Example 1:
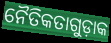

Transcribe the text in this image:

ନୈତିକତାଗୁଡ଼ାକ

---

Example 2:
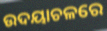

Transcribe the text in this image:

ଉଦୟାଚଳରେ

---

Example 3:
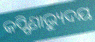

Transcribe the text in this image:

କପ୍ଫିଣାଭ୍ୟୁଦୟ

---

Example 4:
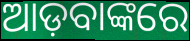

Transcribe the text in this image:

ଆଡ଼ବାଙ୍କରେ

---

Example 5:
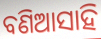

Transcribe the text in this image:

ବଣିଆସାହି